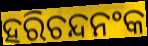
ହରିଚନ୍ଦନଂକ